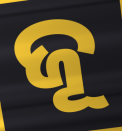
ଜୂ